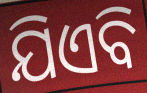
ଯିଏବି